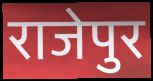
राजेपुर